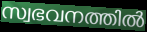
സ്വഭവനത്തിൽ